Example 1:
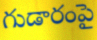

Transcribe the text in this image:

గుడారంపై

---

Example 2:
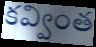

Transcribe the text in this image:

కవ్వింత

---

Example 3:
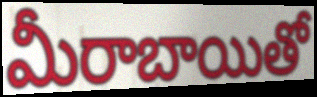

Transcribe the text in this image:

మీరాబాయితో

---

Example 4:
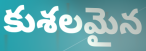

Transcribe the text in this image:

కుశలమైన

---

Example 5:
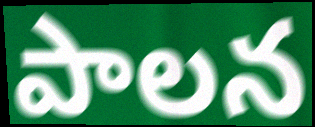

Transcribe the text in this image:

పాలన